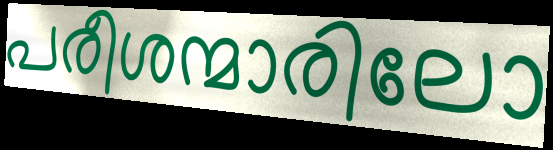
പരീശന്മാരിലോ